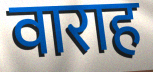
वाराह